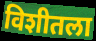
विशीतला